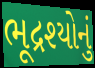
ભૂદ્રશ્યોનું